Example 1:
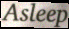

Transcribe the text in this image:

Asleep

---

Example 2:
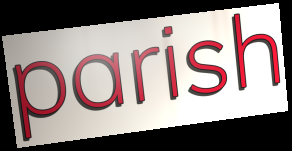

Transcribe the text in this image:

parish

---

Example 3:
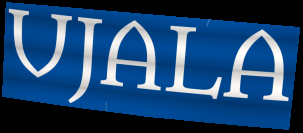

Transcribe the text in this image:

UJALA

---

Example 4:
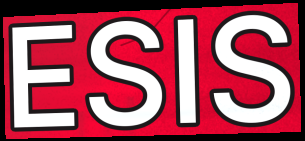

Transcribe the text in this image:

ESIS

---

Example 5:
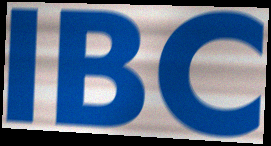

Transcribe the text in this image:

IBC